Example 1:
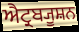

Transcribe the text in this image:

ਐਟ੍ਰਬ੍ਯੂਸ਼ਨ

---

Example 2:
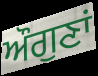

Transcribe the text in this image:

ਔਗੁਣਾਂ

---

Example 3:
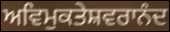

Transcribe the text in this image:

ਅਵਿਮੁਕਤੇਸ਼ਵਰਾਨੰਦ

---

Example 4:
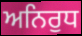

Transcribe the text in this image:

ਅਨਿਰੁਧ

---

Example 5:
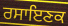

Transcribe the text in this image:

ਰਸਾਇਣਕ